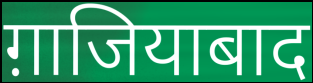
ग़ाजियाबाद